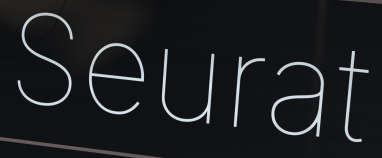
Seurat